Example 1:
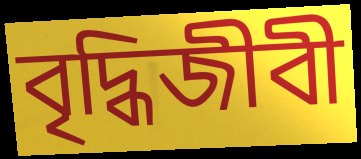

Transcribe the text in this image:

বৃদ্ধিজীবী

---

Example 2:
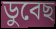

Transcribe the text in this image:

ডুবেছ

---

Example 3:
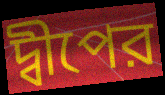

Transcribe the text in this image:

দ্বীপের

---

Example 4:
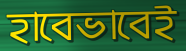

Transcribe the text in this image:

হাবেভাবেই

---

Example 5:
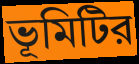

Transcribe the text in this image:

ভূমিটির